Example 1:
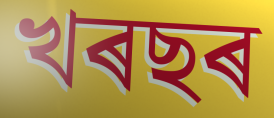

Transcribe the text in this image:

খৰছৰ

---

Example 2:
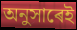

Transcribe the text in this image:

অনুসাৰেই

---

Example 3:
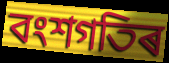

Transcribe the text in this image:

বংশগতিৰ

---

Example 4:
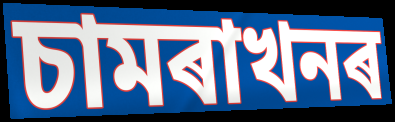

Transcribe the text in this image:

চামৰাখনৰ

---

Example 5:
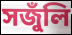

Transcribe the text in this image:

সজুঁলি